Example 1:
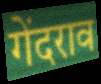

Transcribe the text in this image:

गेंदराव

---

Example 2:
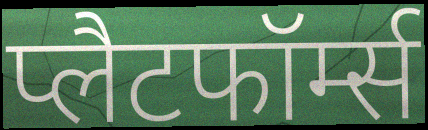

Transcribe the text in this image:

प्लैटफॉर्म्स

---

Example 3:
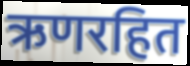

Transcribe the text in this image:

ऋणरहित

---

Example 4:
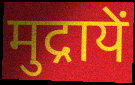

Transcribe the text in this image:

मुद्रायें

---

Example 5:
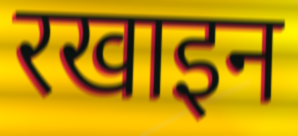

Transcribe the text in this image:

रखाइन